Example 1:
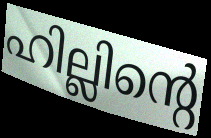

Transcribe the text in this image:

ഹില്ലിന്റെ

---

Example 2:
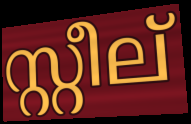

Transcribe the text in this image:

സ്റ്റീല്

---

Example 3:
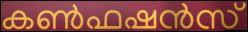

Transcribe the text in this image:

കൺഫഷൻസ്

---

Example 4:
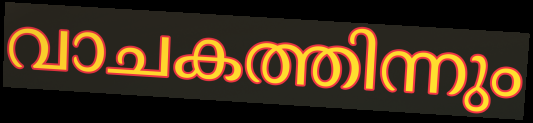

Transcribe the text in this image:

വാചകത്തിന്നും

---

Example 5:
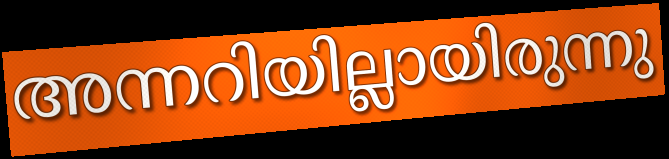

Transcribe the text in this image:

അന്നറിയില്ലായിരുന്നു